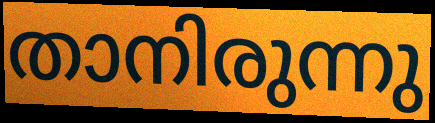
താനിരുന്നു